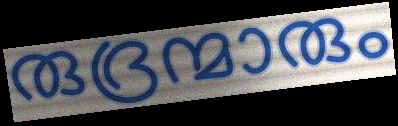
രുദ്രന്മാരും